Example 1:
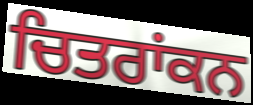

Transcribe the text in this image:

ਚਿਤਰਾਂਕਨ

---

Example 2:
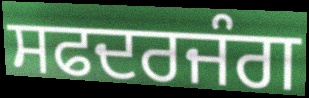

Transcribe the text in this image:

ਸਫਦਰਜੰਗ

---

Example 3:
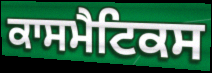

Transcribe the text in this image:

ਕਾਸਮੈਟਿਕਸ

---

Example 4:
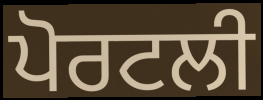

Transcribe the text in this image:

ਪੋਰਟਲੀ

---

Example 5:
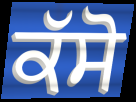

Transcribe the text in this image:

ਕੱਸੋ